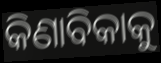
କିଣାବିକାକୁ